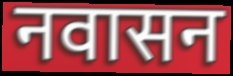
नवासन